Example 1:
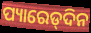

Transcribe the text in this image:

ପ୍ୟାରେଡ୍‌ଦିନ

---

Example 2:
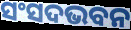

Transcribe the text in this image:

ସଂସଦଭବନ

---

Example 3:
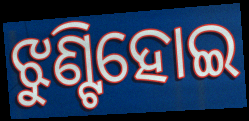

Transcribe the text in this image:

ଝୁଣ୍ଟିହୋଇ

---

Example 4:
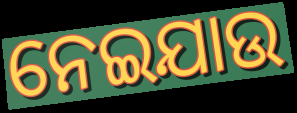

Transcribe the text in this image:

ନେଇଯାଉ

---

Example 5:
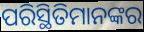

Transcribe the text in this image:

ପରିସ୍ଥିତିମାନଙ୍କର